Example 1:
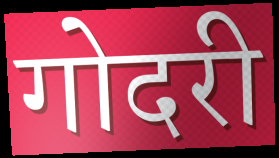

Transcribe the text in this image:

गोदरी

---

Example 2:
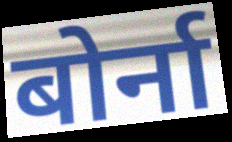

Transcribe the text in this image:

बोर्ना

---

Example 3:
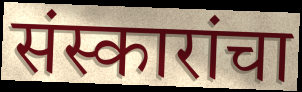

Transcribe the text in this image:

संस्कारांचा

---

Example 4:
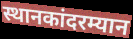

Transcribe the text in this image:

स्थानकांदरम्यान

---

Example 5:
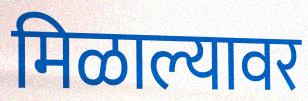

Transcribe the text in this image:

मिळाल्यावर